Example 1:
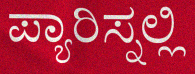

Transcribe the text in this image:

ಪ್ಯಾರಿಸ್ನಲ್ಲಿ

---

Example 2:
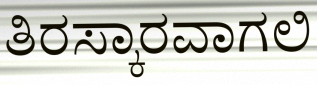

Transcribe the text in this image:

ತಿರಸ್ಕಾರವಾಗಲಿ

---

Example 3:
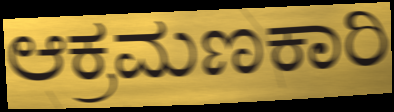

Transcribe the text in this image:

ಆಕ್ರಮಣಕಾರಿ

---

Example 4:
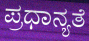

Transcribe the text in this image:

ಪ್ರಧಾನ್ಯತೆ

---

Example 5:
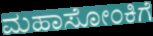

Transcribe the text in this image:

ಮಹಾಸೋಂಕಿಗೆ